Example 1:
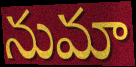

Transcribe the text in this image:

నుమా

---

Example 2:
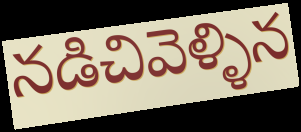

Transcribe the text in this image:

నడిచివెళ్ళిన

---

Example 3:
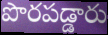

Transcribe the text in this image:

పొరపడ్డారు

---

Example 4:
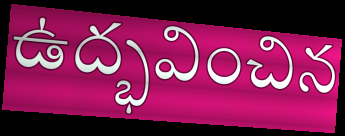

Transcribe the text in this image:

ఉద్భవించిన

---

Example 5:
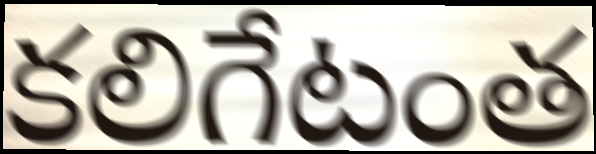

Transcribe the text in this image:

కలిగేటంత